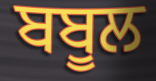
ਬਬੂਲ